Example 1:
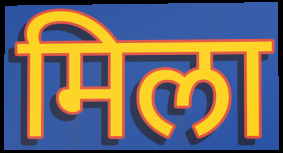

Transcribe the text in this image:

मिला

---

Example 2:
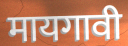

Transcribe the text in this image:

मायगावी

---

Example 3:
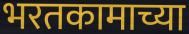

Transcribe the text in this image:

भरतकामाच्या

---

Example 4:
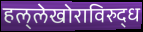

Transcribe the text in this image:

हल्लेखोराविरुद्ध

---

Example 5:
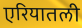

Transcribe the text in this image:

एरियातली